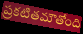
ప్రకటితమౌతోంది